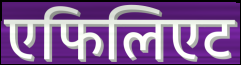
एफिलिएट